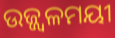
ଉଜ୍ଜ୍ୱଳମୟୀ